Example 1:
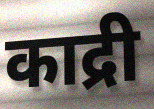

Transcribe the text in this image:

काद्री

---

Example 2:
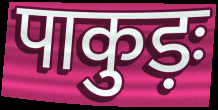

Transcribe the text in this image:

पाकुड़ः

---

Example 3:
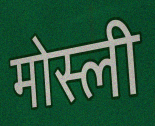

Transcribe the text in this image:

मोस्ली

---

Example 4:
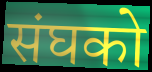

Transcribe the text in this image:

संघको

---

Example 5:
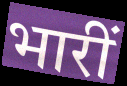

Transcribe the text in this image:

भारीं